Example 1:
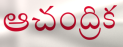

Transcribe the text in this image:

ఆచంద్రిక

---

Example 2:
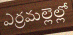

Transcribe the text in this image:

ఎర్రమల్లెల్లో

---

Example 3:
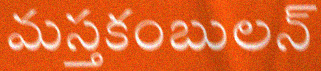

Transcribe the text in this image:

మస్తకంబులన్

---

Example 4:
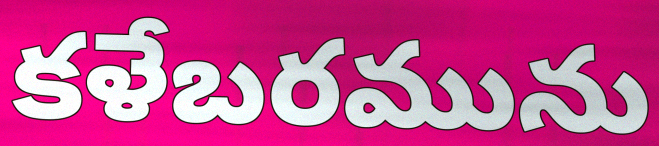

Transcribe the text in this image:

కళేబరమును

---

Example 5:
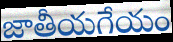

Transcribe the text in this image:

జాతీయగేయం